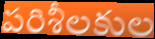
పరిశీలకుల